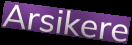
Arsikere